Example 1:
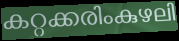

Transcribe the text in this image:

കറ്റക്കരിംകുഴലി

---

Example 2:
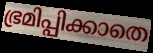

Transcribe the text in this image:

ഭ്രമിപ്പിക്കാതെ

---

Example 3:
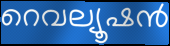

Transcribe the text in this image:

റെവല്യൂഷൻ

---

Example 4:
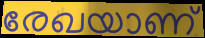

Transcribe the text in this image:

രേഖയാണ്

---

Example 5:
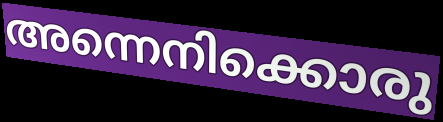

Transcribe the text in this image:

അന്നെനിക്കൊരു